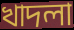
খাদলা